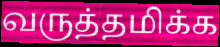
வருத்தமிக்க